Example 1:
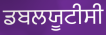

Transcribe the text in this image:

ਡਬਲਯੂਟੀਸੀ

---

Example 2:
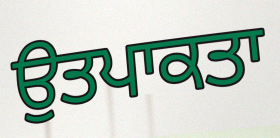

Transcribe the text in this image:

ਉਤਪਾਕਤਾ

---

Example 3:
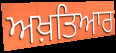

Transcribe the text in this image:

ਅਖ਼ਤਿਆਰ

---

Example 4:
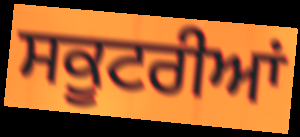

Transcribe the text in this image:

ਸਕੂਟਰੀਆਂ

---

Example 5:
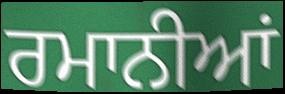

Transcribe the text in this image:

ਰਮਾਨੀਆਂ